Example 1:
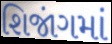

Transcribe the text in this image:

શિજાંગમાં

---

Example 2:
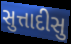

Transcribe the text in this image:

સુત્તાદીસુ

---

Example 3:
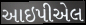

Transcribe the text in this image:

આઇપીએલ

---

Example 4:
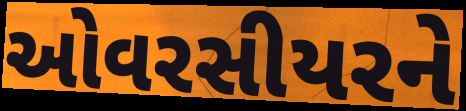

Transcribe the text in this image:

ઓવરસીયરને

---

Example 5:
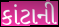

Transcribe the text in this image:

કાંટાની